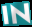
IN